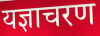
यज्ञाचरण